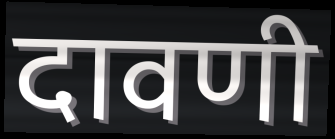
दावणी